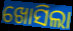
ଖୋସିଲା